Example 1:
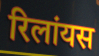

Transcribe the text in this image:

रिलांयस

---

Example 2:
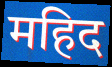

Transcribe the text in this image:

महिद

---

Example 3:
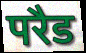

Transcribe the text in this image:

परैड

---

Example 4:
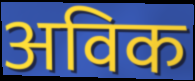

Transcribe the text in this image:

अविक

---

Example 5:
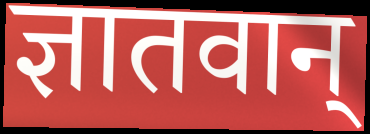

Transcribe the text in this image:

ज्ञातवान्